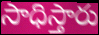
సాధిస్తారు